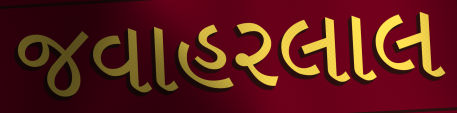
જવાહરલાલ